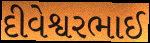
દીવેશ્વરભાઈ